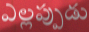
ఎల్లప్పుడు